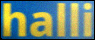
halli